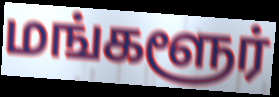
மங்களூர்